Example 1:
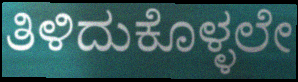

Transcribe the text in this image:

ತಿಳಿದುಕೊಳ್ಳಲೇ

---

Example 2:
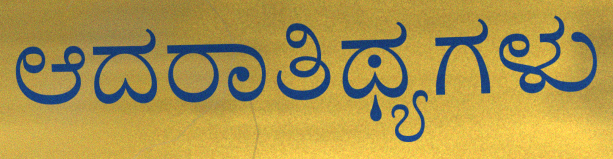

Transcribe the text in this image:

ಆದರಾತಿಥ್ಯಗಳು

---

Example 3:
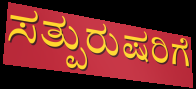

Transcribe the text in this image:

ಸತ್ಪುರುಷರಿಗೆ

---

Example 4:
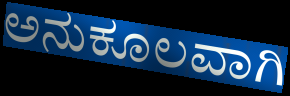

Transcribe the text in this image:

ಅನುಕೂಲವಾಗಿ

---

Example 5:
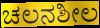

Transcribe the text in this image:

ಚಲನಶೀಲ